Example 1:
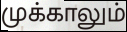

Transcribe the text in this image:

முக்காலும்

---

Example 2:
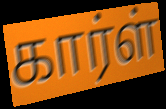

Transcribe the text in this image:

கார்ள்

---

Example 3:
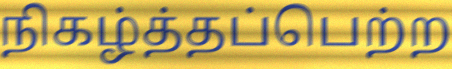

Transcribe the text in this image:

நிகழ்த்தப்பெற்ற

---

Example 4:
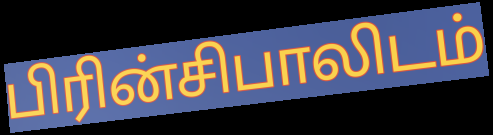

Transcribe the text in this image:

பிரின்சிபாலிடம்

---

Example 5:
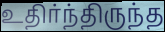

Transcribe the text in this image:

உதிர்ந்திருந்த